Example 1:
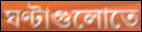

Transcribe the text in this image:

ঘণ্টাগুলোতে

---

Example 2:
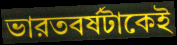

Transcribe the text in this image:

ভারতবর্ষটাকেই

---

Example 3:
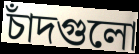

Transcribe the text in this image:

চাঁদগুলো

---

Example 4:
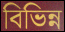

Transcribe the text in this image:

বিভিন্ন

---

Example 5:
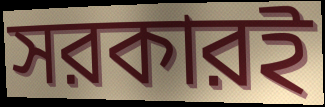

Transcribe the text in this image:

সরকারই